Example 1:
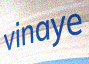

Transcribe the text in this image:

vinaye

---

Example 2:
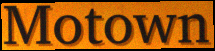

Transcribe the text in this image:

Motown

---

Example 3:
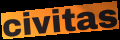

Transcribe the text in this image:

civitas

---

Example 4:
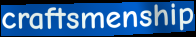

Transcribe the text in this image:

craftsmenship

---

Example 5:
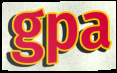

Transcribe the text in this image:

gpa